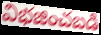
విభజించబడి